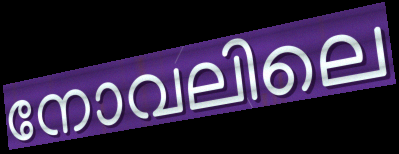
നോവലിലെ